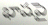
భాషపై